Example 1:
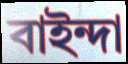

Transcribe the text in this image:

বাইন্দা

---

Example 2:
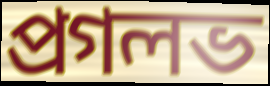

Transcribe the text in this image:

প্রগলভ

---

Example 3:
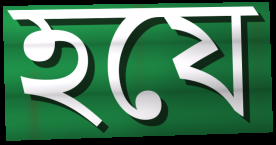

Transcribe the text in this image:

হযে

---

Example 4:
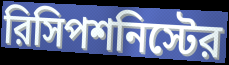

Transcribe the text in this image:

রিসিপশনিস্টের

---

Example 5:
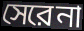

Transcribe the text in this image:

সেরেনা